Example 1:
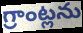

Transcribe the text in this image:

గ్రాంట్లను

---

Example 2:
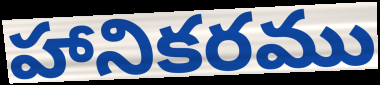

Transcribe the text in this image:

హానికరము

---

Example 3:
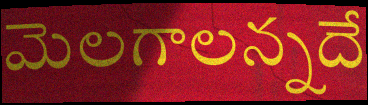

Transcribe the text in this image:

మెలగాలన్నదే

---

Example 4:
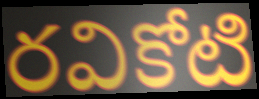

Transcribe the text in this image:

రవికోటి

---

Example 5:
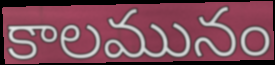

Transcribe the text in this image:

కాలమునం